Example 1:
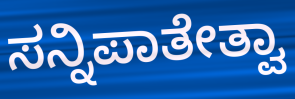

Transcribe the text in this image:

ಸನ್ನಿಪಾತೇತ್ವಾ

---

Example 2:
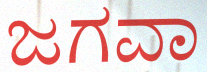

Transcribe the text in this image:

ಜಗವಾ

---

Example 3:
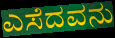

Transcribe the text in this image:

ಎಸೆದವನು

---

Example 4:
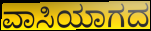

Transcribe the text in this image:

ವಾಸಿಯಾಗದ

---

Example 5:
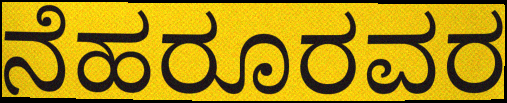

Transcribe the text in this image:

ನೆಹರೂರವರ